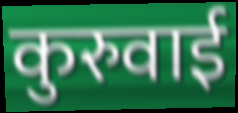
कुरुवाई